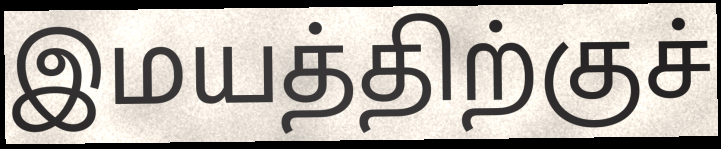
இமயத்திற்குச்